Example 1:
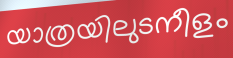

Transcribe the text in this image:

യാത്രയിലുടനീളം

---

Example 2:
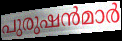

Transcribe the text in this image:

പുരുഷൻമാർ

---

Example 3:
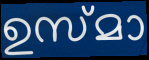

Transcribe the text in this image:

ഉസ്മാ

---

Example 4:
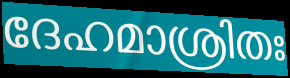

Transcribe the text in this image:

ദേഹമാശ്രിതഃ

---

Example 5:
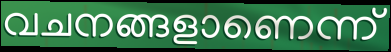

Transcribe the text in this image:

വചനങ്ങളാണെന്ന്